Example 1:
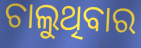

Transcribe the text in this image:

ଚାଲୁଥିବାର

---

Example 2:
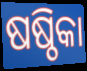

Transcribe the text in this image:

ଷଷ୍ଠିକା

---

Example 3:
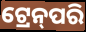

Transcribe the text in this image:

ଟ୍ରେନ୍‌ପରି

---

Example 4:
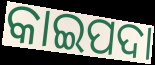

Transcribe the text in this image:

କାଇପଦା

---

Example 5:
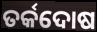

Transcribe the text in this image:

ତର୍କଦୋଷ